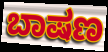
ಬಾಷಣ